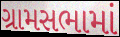
ગ્રામસભામાં